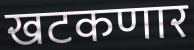
खटकणार